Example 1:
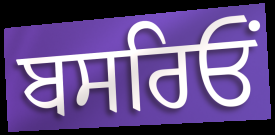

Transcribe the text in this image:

ਬਸਰਿਓਂ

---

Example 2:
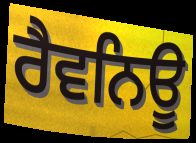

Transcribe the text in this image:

ਰੈਵਨਿਊ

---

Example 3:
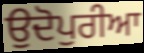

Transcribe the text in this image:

ਉਦੋਪੁਰੀਆ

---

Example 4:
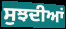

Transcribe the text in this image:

ਸੁਝਦੀਆਂ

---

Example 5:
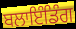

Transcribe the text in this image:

ਬਲਾਇੰਡਿੰਗ